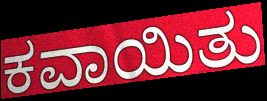
ಕವಾಯಿತು